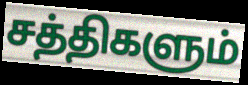
சத்திகளும்